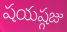
షయష్గజు